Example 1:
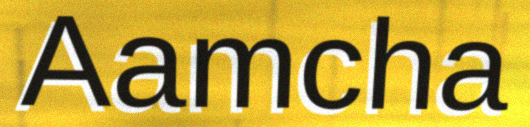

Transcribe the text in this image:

Aamcha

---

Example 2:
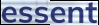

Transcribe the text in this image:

essent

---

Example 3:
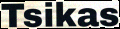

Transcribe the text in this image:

Tsikas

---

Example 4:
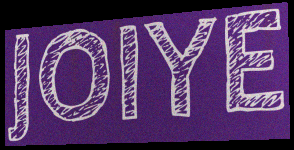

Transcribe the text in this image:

JOIYE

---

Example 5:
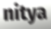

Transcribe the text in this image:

nitya